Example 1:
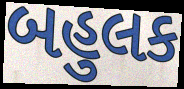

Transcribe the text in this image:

બહુલક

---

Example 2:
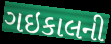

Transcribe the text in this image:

ગઇકાલની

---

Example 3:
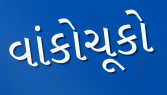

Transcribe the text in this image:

વાંકોચૂકો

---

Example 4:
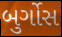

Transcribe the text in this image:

બુર્ગોસ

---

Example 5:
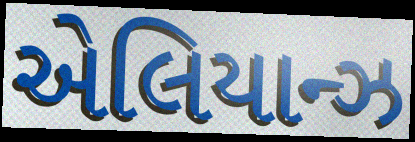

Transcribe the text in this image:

એલિયાન્ઝ